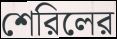
শেরিলের